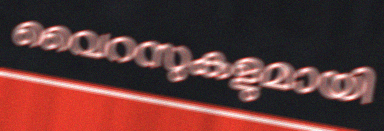
വൈറസുകളുമായി